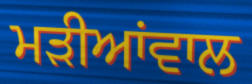
ਮੜੀਆਂਵਾਲ